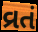
વ્રતં